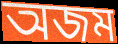
অজম